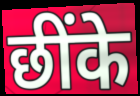
छींके